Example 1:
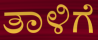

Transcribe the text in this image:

ತಾಳಿಗೆ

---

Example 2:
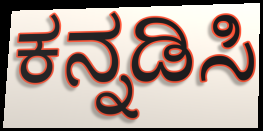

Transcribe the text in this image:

ಕನ್ನಡಿಸಿ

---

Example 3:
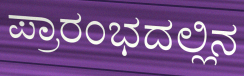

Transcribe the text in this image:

ಪ್ರಾರಂಭದಲ್ಲಿನ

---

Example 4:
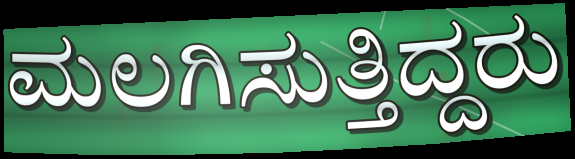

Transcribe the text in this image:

ಮಲಗಿಸುತ್ತಿದ್ದರು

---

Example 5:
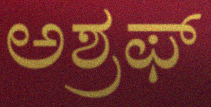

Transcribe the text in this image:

ಅಶ್ರಫ್